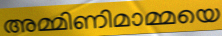
അമ്മിണിമാമ്മയെ